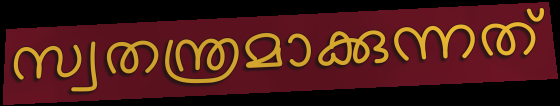
സ്വതന്ത്രമാക്കുന്നത്